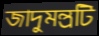
জাদুমন্ত্রটি